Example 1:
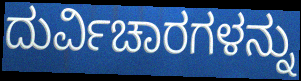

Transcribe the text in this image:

ದುರ್ವಿಚಾರಗಳನ್ನು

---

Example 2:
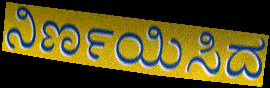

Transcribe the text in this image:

ನಿರ್ಣಯಿಸಿದ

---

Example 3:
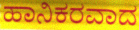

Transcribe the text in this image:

ಹಾನಿಕರವಾದ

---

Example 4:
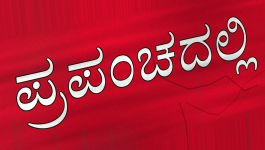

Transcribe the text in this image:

ಪ್ರಪಂಚದಲ್ಲಿ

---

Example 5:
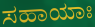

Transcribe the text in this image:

ಸಹಾಯಾಃ